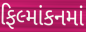
ફિલ્માંકનમાં